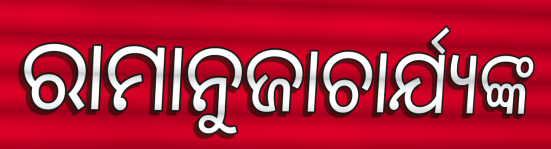
ରାମାନୁଜାଚାର୍ଯ୍ୟଙ୍କ